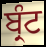
ਬ੍ਰੰਟ